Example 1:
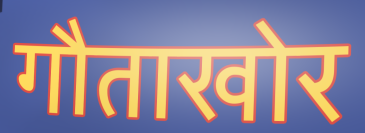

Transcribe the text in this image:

गौताखोर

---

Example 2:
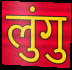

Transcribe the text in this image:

लुंगु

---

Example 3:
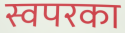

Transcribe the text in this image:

स्वपरका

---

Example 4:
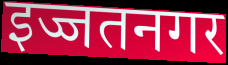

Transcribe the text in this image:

इज्जतनगर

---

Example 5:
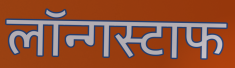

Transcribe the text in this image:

लॉन्गस्टाफ